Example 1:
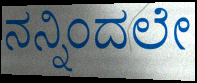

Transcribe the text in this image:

ನನ್ನಿಂದಲೇ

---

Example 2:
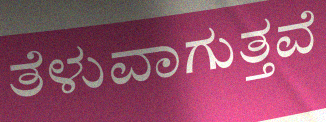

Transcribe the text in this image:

ತೆಳುವಾಗುತ್ತವೆ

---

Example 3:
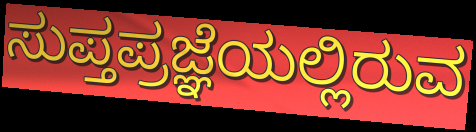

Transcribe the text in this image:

ಸುಪ್ತಪ್ರಜ್ಞೆಯಲ್ಲಿರುವ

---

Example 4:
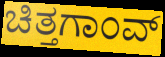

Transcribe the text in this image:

ಚಿತ್ತಗಾಂವ್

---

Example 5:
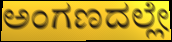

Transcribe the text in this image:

ಅಂಗಣದಲ್ಲೇ